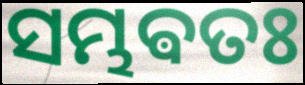
ସମ୍ଭଵତଃ